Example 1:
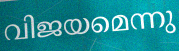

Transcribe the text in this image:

വിജയമെന്നു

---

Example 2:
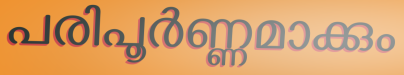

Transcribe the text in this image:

പരിപൂർണ്ണമാക്കും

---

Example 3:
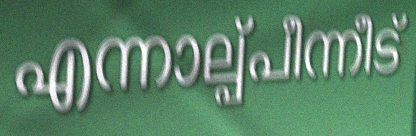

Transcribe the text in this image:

എന്നാല്പ്പീന്നീട്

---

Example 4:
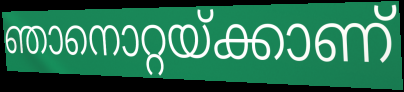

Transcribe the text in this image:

ഞാനൊറ്റയ്ക്കാണ്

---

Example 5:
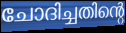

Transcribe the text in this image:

ചോദിച്ചതിന്റെ